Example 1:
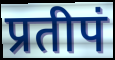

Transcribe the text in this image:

प्रतीपं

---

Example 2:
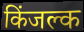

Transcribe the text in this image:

किंजल्क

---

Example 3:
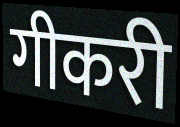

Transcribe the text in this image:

गीकरी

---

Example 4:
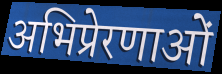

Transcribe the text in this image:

अभिप्रेरणाओं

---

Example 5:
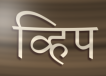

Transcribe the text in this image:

व्हिप